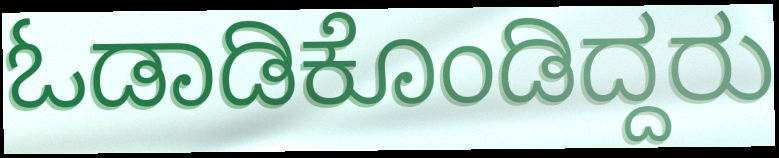
ಓಡಾಡಿಕೊಂಡಿದ್ದರು